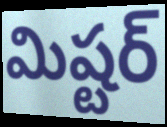
మిష్టర్